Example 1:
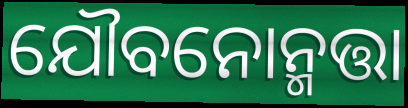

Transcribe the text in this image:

ଯୌବନୋନ୍ମତ୍ତା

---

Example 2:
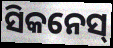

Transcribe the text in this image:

ସିକନେସ୍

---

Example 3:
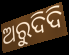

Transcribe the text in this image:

ଅରୁଦିଦି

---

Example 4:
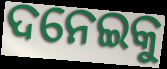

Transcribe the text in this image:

ଦନେଇକୁ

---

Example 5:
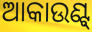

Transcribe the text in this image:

ଆକାଉଣ୍ଟ୍